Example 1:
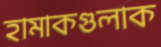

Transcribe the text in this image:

হামাকগুলাক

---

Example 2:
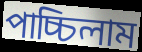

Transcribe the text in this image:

পাচ্চিলাম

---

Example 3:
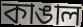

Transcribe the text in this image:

কাঙাল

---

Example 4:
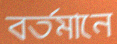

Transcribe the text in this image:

বর্তমানে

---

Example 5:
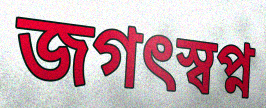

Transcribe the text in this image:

জগৎস্বপ্ন